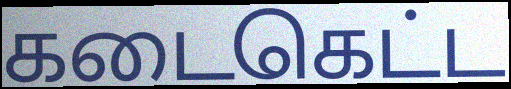
கடைகெட்ட